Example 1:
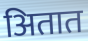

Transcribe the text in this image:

अितात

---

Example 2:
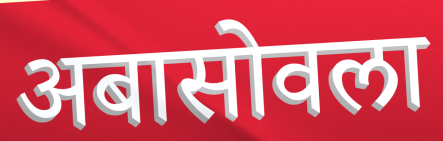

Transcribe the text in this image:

अबासोवला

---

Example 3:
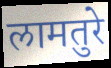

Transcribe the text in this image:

लामतुरे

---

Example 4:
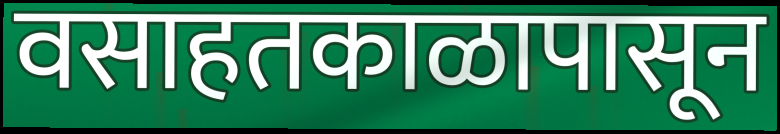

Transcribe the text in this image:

वसाहतकाळापासून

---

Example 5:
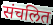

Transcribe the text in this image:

संचलित